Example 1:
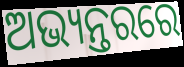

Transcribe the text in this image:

ଅଭ୍ୟନ୍ତରରେ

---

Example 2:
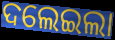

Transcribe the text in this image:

ଦଲେଇଲା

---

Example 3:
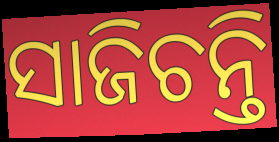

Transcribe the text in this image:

ସାଜିଚନ୍ତି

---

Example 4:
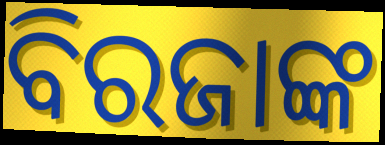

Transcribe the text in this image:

ବିରଜାଙ୍କ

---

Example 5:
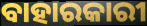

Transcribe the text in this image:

ବାହାରକାରୀ